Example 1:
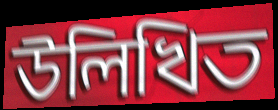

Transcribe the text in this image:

উলিখিত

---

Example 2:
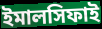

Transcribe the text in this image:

ইমালসিফাই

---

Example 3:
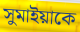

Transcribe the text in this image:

সুমাইয়াকে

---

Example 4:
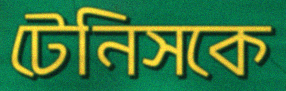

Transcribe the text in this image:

টেনিসকে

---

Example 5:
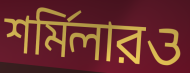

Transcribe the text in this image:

শর্মিলারও